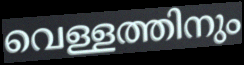
വെള്ളത്തിനും